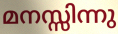
മനസ്സിന്നു